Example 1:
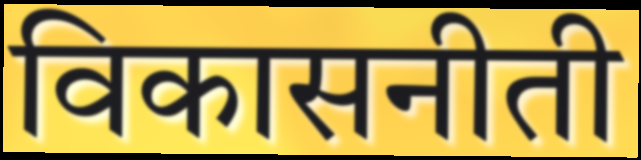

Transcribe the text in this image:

विकासनीती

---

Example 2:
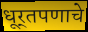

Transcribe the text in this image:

धूर्तपणाचे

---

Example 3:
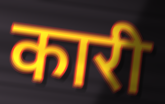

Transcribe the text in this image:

कारी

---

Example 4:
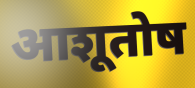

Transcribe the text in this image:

आशूतोष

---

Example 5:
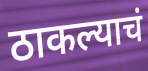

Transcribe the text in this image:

ठाकल्याचं